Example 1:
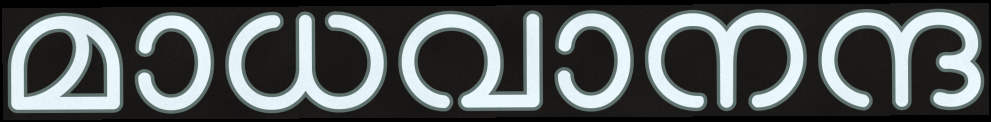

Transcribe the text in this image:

മാധവാനന്ദ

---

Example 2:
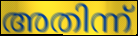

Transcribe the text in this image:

അതിന്ന്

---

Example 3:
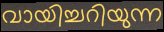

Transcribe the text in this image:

വായിച്ചറിയുന്ന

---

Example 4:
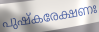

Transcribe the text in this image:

പുഷ്കരേക്ഷണഃ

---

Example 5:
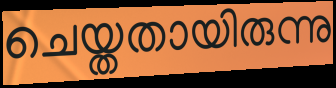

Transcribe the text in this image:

ചെയ്തതായിരുന്നു